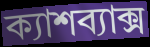
ক্যাশব্যাক্স